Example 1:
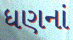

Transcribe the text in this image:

ધણનાં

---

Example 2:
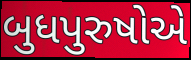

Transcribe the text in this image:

બુધપુરુષોએ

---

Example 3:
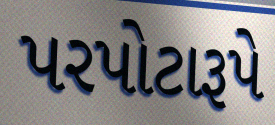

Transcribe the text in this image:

પરપોટારૂપે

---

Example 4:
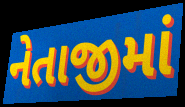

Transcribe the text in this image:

નેતાજીમાં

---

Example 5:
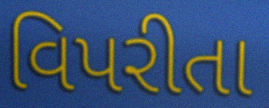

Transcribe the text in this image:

વિપરીતા